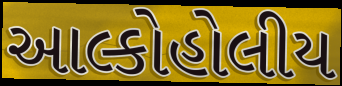
આલ્કોહોલીય